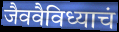
जैववैविध्याचं